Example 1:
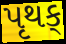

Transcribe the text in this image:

પૃથક્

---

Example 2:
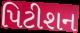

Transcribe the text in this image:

પિટીશન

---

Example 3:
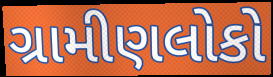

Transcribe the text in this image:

ગ્રામીણલોકો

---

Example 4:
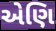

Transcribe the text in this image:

એણિ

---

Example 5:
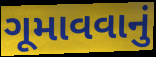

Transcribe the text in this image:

ગૂમાવવાનું